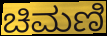
ಚಿಮಣಿ